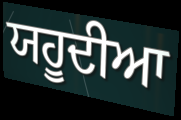
ਯਹੂਦੀਆ